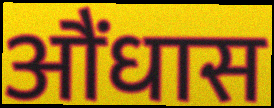
औंधास